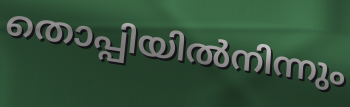
തൊപ്പിയിൽനിന്നും